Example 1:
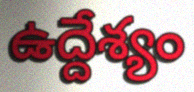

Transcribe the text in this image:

ఉద్దేశ్యం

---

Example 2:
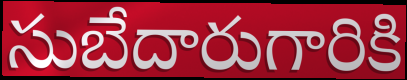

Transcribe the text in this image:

సుబేదారుగారికి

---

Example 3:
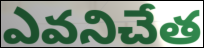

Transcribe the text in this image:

ఎవనిచేత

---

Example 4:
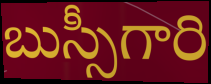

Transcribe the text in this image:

బుస్సీగారి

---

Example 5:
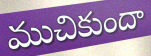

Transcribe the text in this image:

ముచికుందా